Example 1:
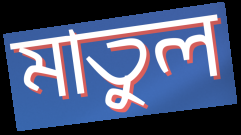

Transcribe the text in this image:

মাতুল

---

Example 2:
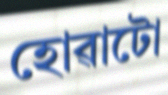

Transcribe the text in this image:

হোৱাটো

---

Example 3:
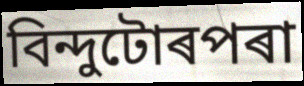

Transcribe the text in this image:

বিন্দুটোৰপৰা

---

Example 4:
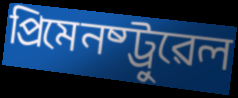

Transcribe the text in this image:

প্ৰিমেনষ্ট্ৰুৱেল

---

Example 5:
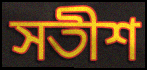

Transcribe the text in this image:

সতীশ